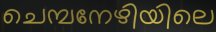
ചെമ്പനേഴിയിലെ